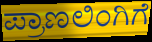
ಪ್ರಾಣಲಿಂಗಿಗೆ